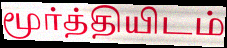
மூர்த்தியிடம்